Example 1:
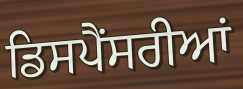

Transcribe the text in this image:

ਡਿਸਪੈਂਸਰੀਆਂ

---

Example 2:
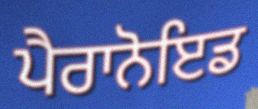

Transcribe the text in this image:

ਪੈਰਾਨੋਇਡ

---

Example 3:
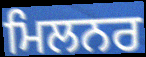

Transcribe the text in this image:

ਮਿਲਨਰ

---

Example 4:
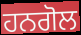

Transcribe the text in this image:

ਹਨਗੋਲ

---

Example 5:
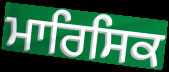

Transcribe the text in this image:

ਮਾਰਿਸਿਕ